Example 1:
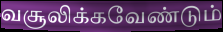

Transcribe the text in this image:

வசூலிக்கவேண்டும்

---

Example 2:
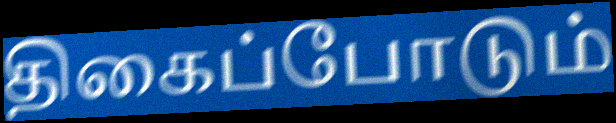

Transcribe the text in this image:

திகைப்போடும்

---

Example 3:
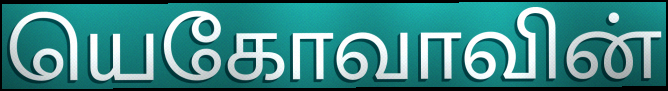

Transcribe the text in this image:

யெகோவாவின்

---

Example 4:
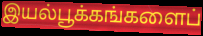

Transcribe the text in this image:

இயல்பூக்கங்களைப்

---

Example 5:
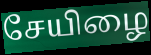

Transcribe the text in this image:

சேயிழை